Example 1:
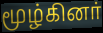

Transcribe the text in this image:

மூழ்கினர்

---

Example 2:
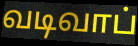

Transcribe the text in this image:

வடிவாப்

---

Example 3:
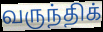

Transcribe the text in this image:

வருந்திக்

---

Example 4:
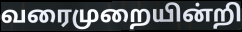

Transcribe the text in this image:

வரைமுறையின்றி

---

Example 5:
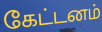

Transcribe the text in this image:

கேட்டனம்